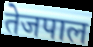
तेजपाल